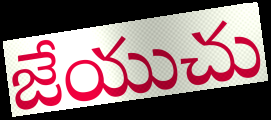
జేయుచు